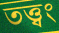
তত্ত্বং